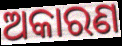
ଅକାରଣ